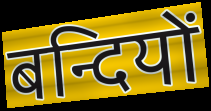
बन्दियों